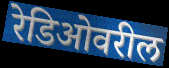
रेडिओवरील